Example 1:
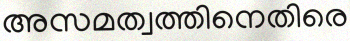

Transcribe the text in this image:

അസമത്വത്തിനെതിരെ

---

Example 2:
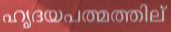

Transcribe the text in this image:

ഹൃദയപത്മത്തില്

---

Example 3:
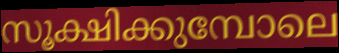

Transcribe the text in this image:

സൂക്ഷിക്കുമ്പോലെ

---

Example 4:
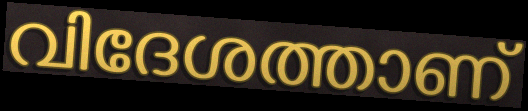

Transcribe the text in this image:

വിദേശത്താണ്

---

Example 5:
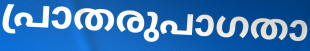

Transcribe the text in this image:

പ്രാതരുപാഗതാ